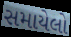
સમાયેલો